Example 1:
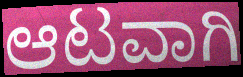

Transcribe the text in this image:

ಆಟವಾಗಿ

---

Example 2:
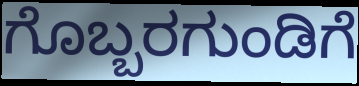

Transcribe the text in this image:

ಗೊಬ್ಬರಗುಂಡಿಗೆ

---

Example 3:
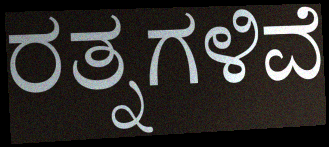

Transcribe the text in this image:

ರತ್ನಗಳಿವೆ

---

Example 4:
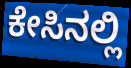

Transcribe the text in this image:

ಕೇಸಿನಲ್ಲಿ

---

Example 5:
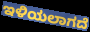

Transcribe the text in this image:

ಇಳಿಯಲಾಗದೆ